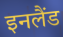
इनलैंड